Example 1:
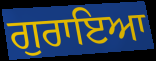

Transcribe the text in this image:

ਗੁਰਾਇਆ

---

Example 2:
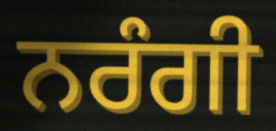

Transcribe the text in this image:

ਨਰੰਗੀ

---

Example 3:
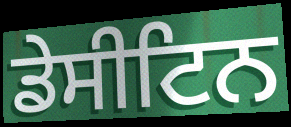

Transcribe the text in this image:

ਡੇਸੀਟਿਨ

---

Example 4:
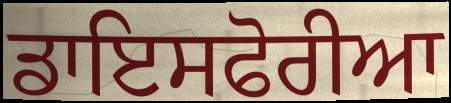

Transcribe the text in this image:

ਡਾਇਸਫੋਰੀਆ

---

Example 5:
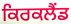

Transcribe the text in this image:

ਕਿਰਕਲੈਂਡ